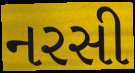
નરસી